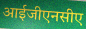
आईजीएनसीए